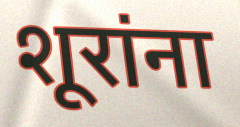
शूरांना